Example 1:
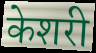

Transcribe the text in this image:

केशरी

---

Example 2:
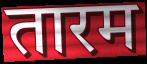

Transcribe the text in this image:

तारम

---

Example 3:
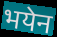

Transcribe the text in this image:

भयेन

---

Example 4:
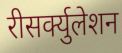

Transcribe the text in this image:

रीसर्क्युलेशन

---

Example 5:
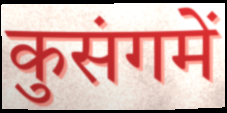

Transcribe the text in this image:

कुसंगमें